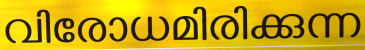
വിരോധമിരിക്കുന്ന